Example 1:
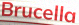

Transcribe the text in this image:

Brucella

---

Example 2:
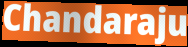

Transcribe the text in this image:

Chandaraju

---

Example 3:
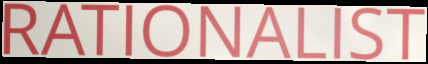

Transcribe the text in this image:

RATIONALIST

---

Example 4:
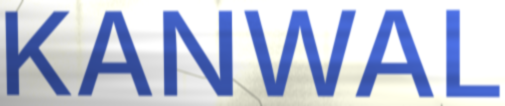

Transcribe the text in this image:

KANWAL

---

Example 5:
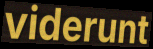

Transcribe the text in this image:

viderunt